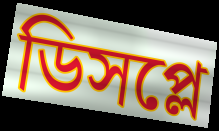
ডিসপ্লে